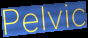
Pelvic